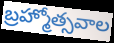
బ్రహ్మోత్సవాల